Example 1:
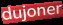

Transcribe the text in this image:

dujoner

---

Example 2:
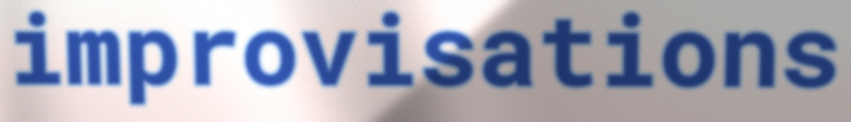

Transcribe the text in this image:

improvisations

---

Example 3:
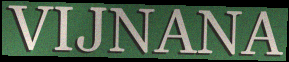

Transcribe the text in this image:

VIJNANA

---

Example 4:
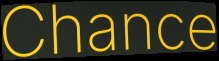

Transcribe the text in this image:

Chance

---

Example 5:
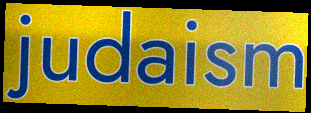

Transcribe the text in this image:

judaism